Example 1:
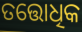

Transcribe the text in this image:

ତତ୍ତୋଧିକ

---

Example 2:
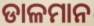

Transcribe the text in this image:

ଡାଳମାନ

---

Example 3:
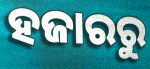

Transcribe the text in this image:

ହଜାରରୁ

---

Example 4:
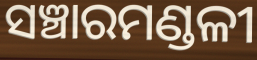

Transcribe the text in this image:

ସଞ୍ଚାରମଣ୍ଡଳୀ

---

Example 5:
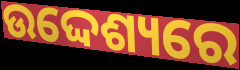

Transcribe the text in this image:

ଉଦ୍ଦେଶ୍ୟରେ